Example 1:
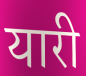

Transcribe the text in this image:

यारी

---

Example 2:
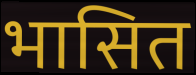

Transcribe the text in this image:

भासित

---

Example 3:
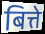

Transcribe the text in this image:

बित्ते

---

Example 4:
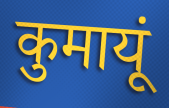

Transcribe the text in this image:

कुमायूं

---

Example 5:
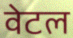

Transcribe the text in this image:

वेटल